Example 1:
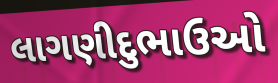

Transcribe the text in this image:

લાગણીદુભાઉઓ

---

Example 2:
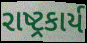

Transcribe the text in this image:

રાષ્ટ્રકાર્ય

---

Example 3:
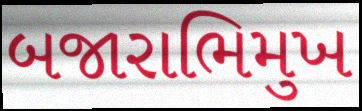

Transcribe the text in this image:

બજારાભિમુખ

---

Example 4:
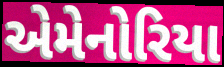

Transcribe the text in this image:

એમેનોરિયા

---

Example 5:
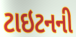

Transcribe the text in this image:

ટાઇટનની